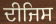
ਦੀਜਿਸ